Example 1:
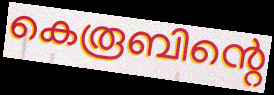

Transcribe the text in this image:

കെരൂബിന്റെ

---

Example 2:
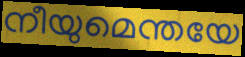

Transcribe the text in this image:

നീയുമെന്തയേ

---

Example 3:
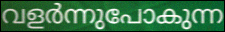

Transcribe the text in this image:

വളർന്നുപോകുന്ന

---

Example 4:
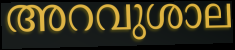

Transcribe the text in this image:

അറവുശാല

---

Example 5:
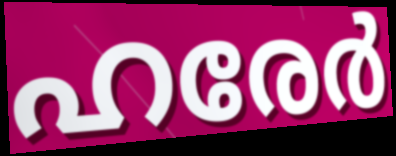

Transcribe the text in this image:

ഹരേർ